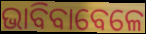
ଭାବିବାବେଳେ